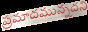
ప్రమాదమున్నదని